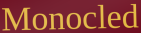
Monocled